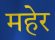
महेर